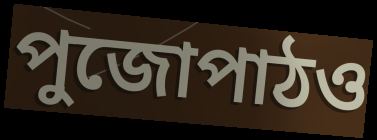
পুজোপাঠও